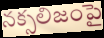
నక్సలిజంపై